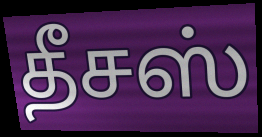
தீசஸ்